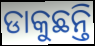
ଡାକୁଛନ୍ତି